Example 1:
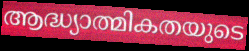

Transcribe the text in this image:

ആദ്ധ്യാത്മികതയുടെ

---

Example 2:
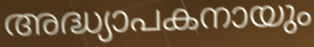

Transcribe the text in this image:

അദ്ധ്യാപകനായും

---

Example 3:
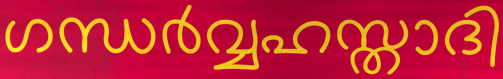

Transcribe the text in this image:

ഗന്ധർവ്വഹസ്താദി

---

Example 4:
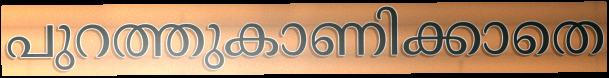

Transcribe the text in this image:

പുറത്തുകാണിക്കാതെ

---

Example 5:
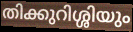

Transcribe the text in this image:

തിക്കുറിശ്ശിയും